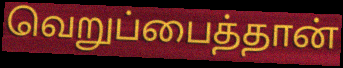
வெறுப்பைத்தான்